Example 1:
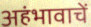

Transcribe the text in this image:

अहंभावाचें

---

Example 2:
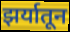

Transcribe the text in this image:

झर्यातून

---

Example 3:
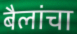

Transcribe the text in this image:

बैलांचा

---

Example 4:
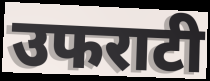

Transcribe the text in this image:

उफराटी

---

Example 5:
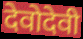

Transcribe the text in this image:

देवोदेवी